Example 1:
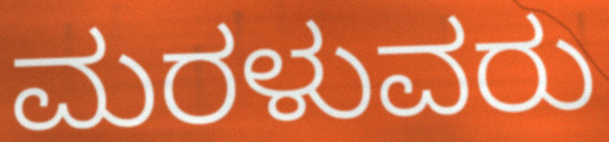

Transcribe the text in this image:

ಮರಳುವರು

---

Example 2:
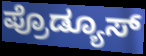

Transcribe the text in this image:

ಪ್ರೊಡ್ಯೂಸ್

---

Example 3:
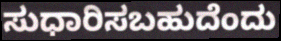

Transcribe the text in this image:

ಸುಧಾರಿಸಬಹುದೆಂದು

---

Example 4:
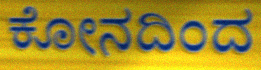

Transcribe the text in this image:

ಕೋನದಿಂದ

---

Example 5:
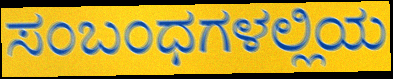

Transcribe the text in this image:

ಸಂಬಂಧಗಳಲ್ಲಿಯ